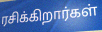
ரசிக்கிறார்கள்